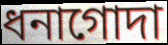
ধনাগোদা